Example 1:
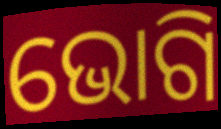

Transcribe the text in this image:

ଭୋଗି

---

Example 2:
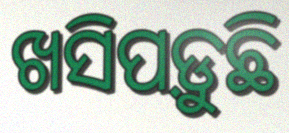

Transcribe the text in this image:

ଖସିପଡ଼ୁଛି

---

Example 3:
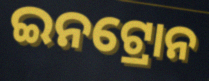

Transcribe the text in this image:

ଇନଟ୍ରୋନ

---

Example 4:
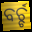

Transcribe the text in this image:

ବର୍ଚ୍ଚ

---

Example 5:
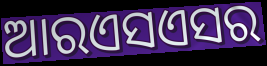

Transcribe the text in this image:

ଆରଏସଏସର